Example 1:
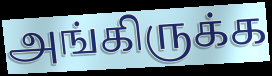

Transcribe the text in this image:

அங்கிருக்க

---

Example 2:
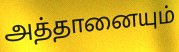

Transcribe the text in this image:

அத்தானையும்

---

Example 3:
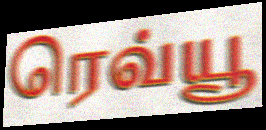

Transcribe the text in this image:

ரெவ்யூ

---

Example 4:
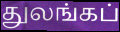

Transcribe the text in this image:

துலங்கப்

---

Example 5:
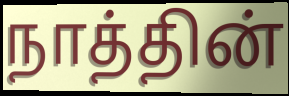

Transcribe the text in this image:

நாத்தின்